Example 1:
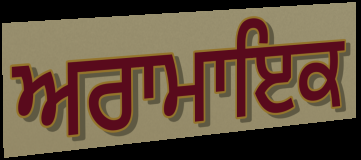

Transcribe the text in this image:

ਅਰਾਮਾਇਕ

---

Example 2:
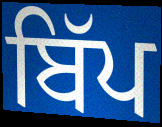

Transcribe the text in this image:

ਬਿੱਪ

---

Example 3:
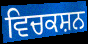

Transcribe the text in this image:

ਵਿਚਕਸ਼ਨ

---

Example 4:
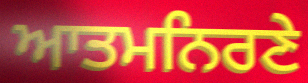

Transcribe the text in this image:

ਆਤਮਨਿਰਣੇ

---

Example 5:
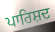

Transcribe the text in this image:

ਪਾਰਿਸ਼ਦ